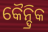
କୈନ୍ଦ୍ରିକ